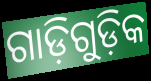
ଗାଡ଼ିଗୁଡ଼ିକ